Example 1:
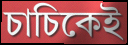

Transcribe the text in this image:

চাচিকেই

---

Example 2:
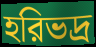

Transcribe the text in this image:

হরিভদ্র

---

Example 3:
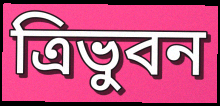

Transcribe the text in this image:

ত্রিভুবন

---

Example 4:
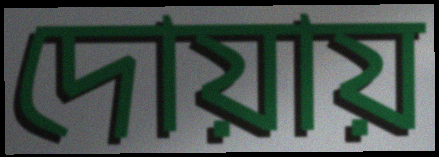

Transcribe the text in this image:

দোয়ায়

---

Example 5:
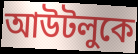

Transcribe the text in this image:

আউটলুকে